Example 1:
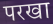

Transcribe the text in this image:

परखा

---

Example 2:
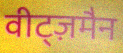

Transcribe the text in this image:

वीट्ज़मैन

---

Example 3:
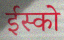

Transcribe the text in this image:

ईस्को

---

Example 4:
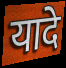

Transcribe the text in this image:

यादे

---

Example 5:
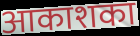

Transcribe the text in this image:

आकाशका